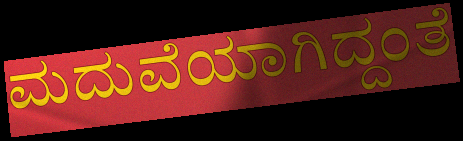
ಮದುವೆಯಾಗಿದ್ದಂತೆ